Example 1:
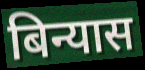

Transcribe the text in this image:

बिन्यास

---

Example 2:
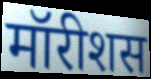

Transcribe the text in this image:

मॉरीशस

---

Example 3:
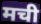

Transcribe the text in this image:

मची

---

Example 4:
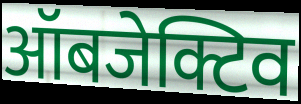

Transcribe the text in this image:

ऑबजेक्टिव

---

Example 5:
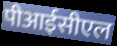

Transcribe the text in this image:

पीआईसीएल